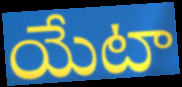
యేటా